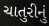
ચાતુરીનું